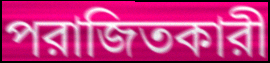
পরাজিতকারী